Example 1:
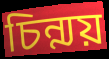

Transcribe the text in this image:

চিন্ময়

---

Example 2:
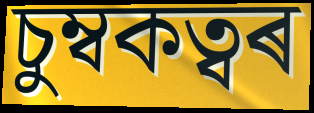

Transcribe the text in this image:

চুম্বকত্বৰ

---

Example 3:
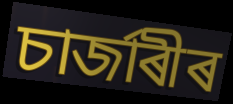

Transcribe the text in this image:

চাৰ্জাৰীৰ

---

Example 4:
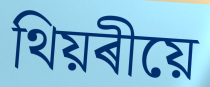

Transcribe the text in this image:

থিয়ৰীয়ে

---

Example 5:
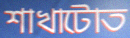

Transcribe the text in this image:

শাখাটোত